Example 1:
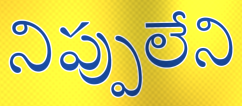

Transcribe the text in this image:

నిప్పులేని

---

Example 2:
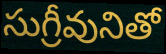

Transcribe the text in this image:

సుగ్రీవునితో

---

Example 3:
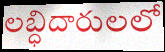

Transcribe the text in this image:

లబ్ధిదారులలో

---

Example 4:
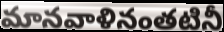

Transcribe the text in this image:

మానవాళినంతటినీ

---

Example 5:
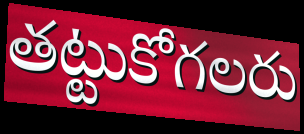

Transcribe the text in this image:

తట్టుకోగలరు